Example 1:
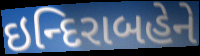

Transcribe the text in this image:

ઇન્દિરાબહેને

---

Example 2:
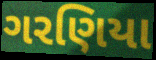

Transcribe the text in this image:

ગરણિયા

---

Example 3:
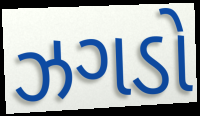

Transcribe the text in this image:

ઝગડો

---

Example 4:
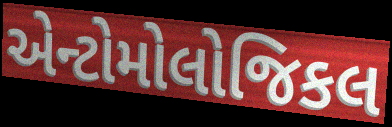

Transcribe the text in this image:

એન્ટોમોલોજિકલ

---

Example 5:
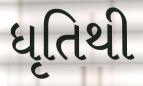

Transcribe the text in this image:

ધૃતિથી